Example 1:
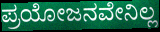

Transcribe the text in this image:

ಪ್ರಯೋಜನವೇನಿಲ್ಲ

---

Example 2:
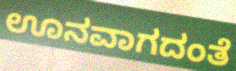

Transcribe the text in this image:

ಊನವಾಗದಂತೆ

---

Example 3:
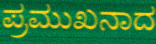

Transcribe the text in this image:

ಪ್ರಮುಖನಾದ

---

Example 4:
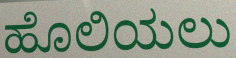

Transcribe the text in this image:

ಹೊಲಿಯಲು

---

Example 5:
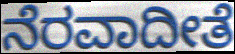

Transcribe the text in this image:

ನೆರವಾದೀತೆ